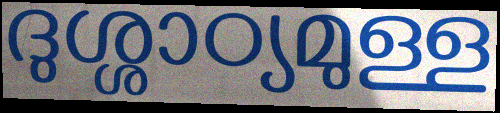
ദുശ്ശാഠ്യമുള്ള